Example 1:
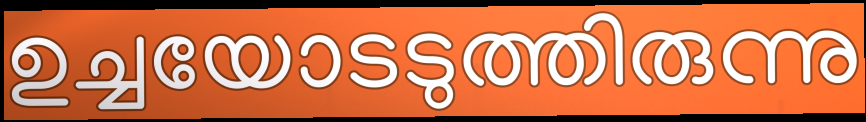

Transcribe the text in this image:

ഉച്ചയോടടുത്തിരുന്നു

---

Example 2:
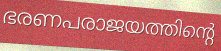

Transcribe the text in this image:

ഭരണപരാജയത്തിന്റെ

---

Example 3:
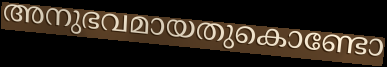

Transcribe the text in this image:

അനുഭവമായതുകൊണ്ടോ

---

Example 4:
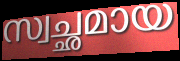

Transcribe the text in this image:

സ്വച്ഛമായ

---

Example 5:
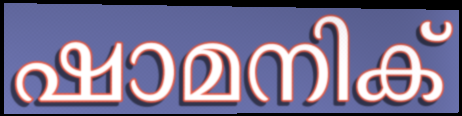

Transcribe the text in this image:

ഷാമനിക്